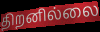
திறனில்லை